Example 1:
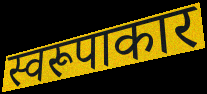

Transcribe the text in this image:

स्वरूपाकार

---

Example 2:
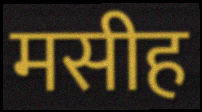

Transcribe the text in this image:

मसीह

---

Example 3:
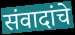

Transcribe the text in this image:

संवादांचे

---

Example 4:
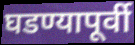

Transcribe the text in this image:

घडण्यापूर्वी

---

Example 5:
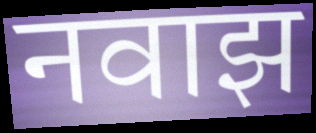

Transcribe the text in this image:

नवाझ